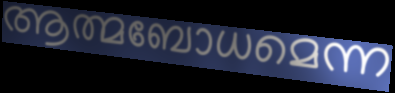
ആത്മബോധമെന്ന